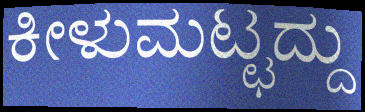
ಕೀಳುಮಟ್ಟದ್ದು